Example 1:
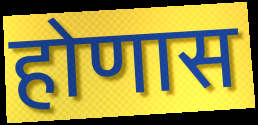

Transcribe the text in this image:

होणास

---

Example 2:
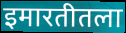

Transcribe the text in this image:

इमारतीतला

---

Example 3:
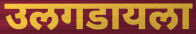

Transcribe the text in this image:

उलगडायला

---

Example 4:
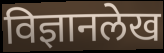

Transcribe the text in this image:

विज्ञानलेख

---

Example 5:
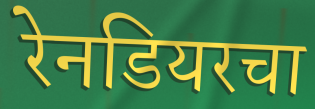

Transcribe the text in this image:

रेनडियरचा